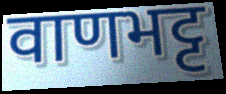
वाणभट्ट